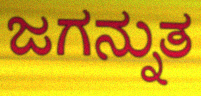
ಜಗನ್ನುತ